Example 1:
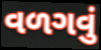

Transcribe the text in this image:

વળગવું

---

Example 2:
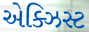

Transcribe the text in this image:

એક્ઝિસ્ટ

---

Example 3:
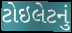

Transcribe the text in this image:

ટોઇલેટનું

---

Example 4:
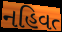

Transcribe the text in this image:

નહિવત્‍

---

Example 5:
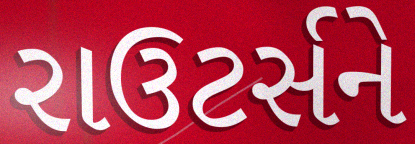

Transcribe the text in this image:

રાઉટર્સને